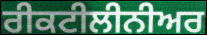
ਰੀਕਟੀਲੀਨੀਅਰ